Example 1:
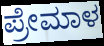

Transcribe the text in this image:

ಪ್ರೇಮಾಳ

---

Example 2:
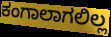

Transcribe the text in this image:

ಕಂಗಾಲಾಗಲಿಲ್ಲ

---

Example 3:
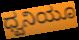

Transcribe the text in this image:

ಧ್ವನಿಯೂ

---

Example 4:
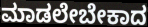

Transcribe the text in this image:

ಮಾಡಲೇಬೇಕಾದ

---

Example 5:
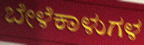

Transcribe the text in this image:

ಬೇಳೆಕಾಳುಗಳ